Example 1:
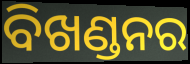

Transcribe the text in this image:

ବିଖଣ୍ଡନର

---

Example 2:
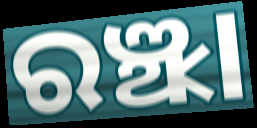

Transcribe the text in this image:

ରଞ୍ଝା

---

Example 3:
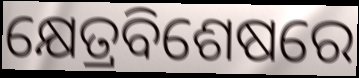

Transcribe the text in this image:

କ୍ଷେତ୍ରବିଶେଷରେ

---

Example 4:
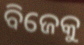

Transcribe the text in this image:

ବିଜେକୁ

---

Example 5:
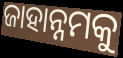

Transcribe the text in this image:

ଜାହାନ୍ନମକୁ